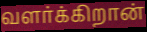
வளர்க்கிறான்